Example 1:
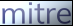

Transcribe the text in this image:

mitre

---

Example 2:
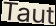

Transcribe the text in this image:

Taut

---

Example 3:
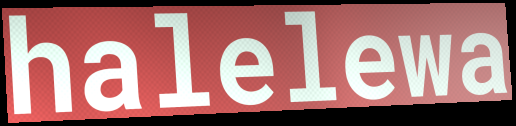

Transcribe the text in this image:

halelewa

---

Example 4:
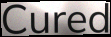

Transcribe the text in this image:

Cured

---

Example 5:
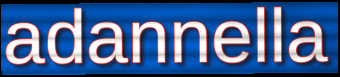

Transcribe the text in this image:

adannella